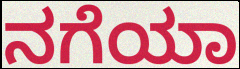
ನಗೆಯಾ